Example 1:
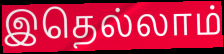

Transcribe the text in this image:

இதெல்லாம்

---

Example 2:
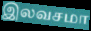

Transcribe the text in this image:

இலவசமா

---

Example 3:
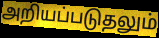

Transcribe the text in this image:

அறியப்படுதலும்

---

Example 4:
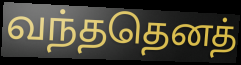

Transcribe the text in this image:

வந்ததெனத்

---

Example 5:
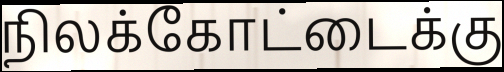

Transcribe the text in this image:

நிலக்கோட்டைக்கு